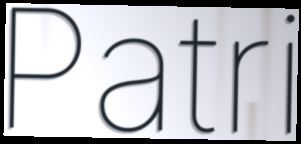
Patri